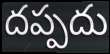
దప్పదు